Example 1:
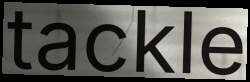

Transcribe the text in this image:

tackle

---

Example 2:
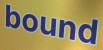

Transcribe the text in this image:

bound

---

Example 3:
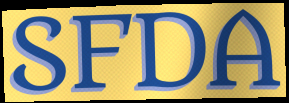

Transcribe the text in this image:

SFDA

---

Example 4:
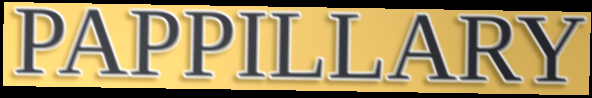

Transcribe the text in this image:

PAPPILLARY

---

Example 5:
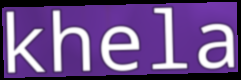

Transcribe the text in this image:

khela